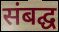
संबद्घ